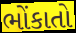
ભોંકાતો